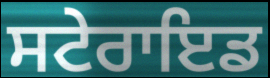
ਸਟੇਰਾਇਡ